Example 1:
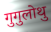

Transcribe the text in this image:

गुगुलोथु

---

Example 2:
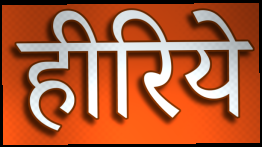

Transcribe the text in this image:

हीरिये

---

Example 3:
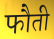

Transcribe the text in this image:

फौती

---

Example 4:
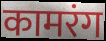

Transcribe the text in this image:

कामरंग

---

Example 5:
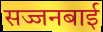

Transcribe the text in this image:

सज्जनबाई